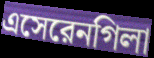
এসেরেনগিলা